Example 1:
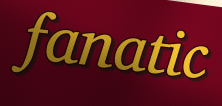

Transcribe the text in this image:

fanatic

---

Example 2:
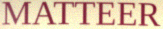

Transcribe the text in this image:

MATTEER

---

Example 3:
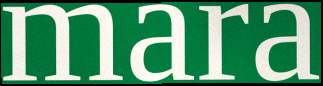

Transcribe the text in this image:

mara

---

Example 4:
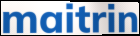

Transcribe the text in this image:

maitrin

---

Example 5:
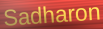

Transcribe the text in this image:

Sadharon